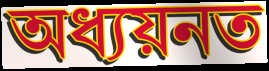
অধ্যয়নত